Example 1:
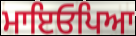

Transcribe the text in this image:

ਮਾਇਓਪਿਆ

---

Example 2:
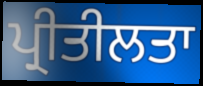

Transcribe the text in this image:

ਪ੍ਰੀਤੀਲਤਾ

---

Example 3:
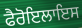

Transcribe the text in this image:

ਫੈਰੋਇਲਾਇਸ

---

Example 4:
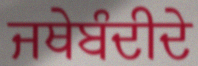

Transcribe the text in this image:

ਜਥੇਬੰਦੀਦੇ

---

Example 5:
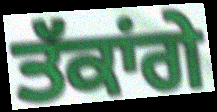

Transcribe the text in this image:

ਤੱਕਾਂਗੇ